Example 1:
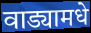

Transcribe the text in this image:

वाड्यामधे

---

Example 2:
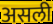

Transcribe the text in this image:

असली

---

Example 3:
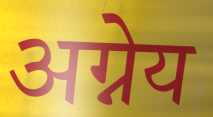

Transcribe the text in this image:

अग्नेय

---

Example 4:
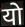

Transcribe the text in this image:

यो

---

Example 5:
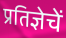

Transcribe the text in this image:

प्रतिज्ञेचें